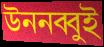
উননব্বুই